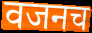
वजनच